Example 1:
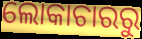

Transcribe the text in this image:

ଲୋକାଚାରରୁ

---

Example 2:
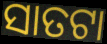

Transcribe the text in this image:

ସାତଟା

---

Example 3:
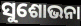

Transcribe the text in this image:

ସୁଶୋଭନା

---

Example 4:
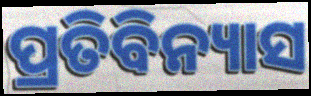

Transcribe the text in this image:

ପ୍ରତିବିନ୍ୟାସ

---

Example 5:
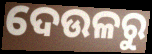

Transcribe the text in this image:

ଦେଉଳରୁ